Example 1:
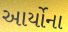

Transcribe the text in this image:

આર્યોના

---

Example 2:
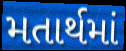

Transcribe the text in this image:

મતાર્થમાં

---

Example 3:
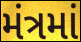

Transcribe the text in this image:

મંત્રમાં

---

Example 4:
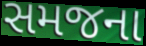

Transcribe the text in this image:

સમજના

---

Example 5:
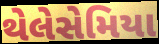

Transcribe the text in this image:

થેલેસેમિયા